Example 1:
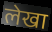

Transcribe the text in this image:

लेखा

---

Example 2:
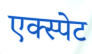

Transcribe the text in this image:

एक्स्पेट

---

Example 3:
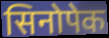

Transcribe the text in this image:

सिनोपेक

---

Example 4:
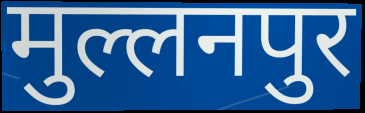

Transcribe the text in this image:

मुल्लनपुर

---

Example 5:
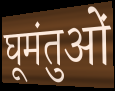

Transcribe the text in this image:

घूमंतुओं